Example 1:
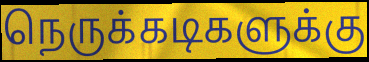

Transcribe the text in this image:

நெருக்கடிகளுக்கு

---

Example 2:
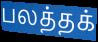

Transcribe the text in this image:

பலத்தக்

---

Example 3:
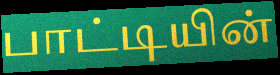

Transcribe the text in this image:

பாட்டியின்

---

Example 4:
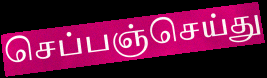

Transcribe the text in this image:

செப்பஞ்செய்து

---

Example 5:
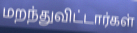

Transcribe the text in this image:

மறந்துவிட்டார்கள்